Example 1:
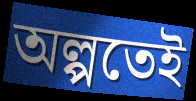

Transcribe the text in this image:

অল্পতেই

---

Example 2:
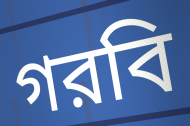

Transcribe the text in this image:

গরবি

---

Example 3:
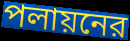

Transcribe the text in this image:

পলায়নের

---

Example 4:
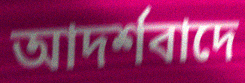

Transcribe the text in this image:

আদর্শবাদে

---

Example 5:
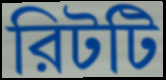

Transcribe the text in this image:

রিটটি